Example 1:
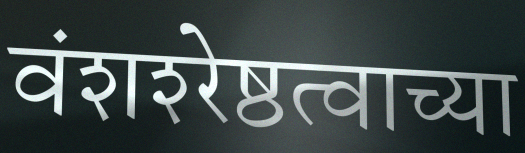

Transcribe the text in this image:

वंशश्रेष्ठत्वाच्या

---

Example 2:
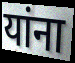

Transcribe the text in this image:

यांना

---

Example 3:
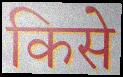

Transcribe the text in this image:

किसे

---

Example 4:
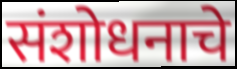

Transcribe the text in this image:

संशोधनाचे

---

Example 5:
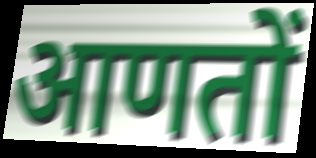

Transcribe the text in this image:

आणतों